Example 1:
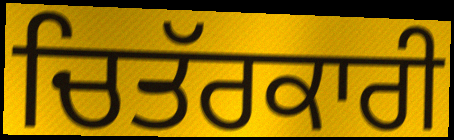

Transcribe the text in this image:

ਚਿਤੱਰਕਾਰੀ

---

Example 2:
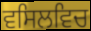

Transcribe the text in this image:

ਵਸਿਲਵਿਚ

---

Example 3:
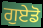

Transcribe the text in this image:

ਗੁਏਡੋ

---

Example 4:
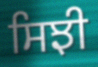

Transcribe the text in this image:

ਸਿਝੀ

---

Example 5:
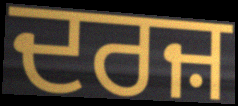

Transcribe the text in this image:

ਦਰਜ਼